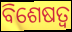
ବିଶେଷତ୍ଵ